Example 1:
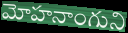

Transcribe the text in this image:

మోహనాంగుని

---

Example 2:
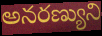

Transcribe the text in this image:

అనరణ్యుని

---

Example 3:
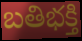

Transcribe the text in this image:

బతిభక్తి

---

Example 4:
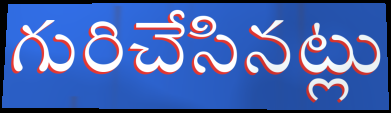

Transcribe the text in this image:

గురిచేసినట్లు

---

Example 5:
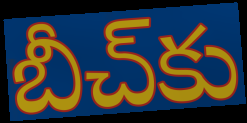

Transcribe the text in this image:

బీచ్‌కు